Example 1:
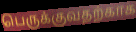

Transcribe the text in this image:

பெருக்குவதற்காக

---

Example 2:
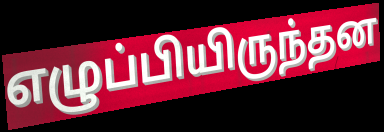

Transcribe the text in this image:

எழுப்பியிருந்தன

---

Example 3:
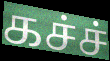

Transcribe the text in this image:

கச்ச்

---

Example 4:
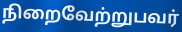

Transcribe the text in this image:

நிறைவேற்றுபவர்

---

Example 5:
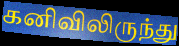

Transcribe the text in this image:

கனிவிலிருந்து